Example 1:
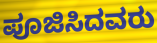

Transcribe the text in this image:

ಪೂಜಿಸಿದವರು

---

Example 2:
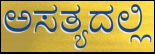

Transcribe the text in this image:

ಅಸತ್ಯದಲ್ಲಿ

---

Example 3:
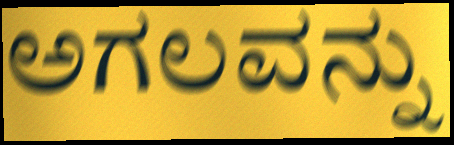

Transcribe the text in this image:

ಅಗಲವನ್ನು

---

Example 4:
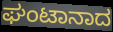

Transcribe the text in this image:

ಘಂಟಾನಾದ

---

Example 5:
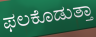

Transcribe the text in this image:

ಫಲಕೊಡುತ್ತಾ